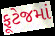
ફૂટેજમાં